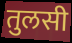
तुलसी